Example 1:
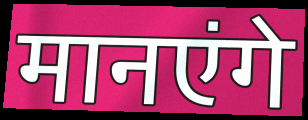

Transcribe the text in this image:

मानएंगे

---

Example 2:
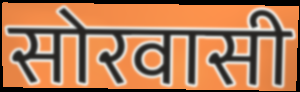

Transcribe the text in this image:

सोरवासी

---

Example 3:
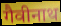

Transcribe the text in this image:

गैवीनाथ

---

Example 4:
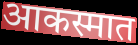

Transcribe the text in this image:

आकस्मात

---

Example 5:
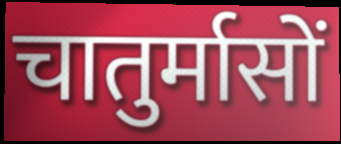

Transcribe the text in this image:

चातुर्मासों